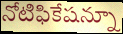
నోటిఫికేషన్నూ